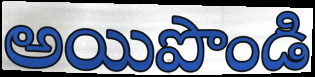
అయిపొండి